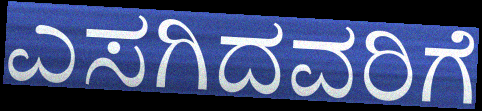
ಎಸಗಿದವರಿಗೆ